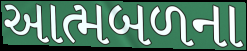
આત્મબળના